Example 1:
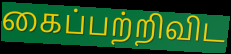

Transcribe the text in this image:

கைப்பற்றிவிட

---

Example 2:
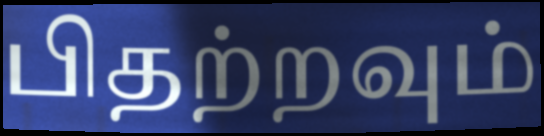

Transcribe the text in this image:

பிதற்றவும்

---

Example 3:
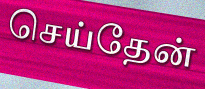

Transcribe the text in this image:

செய்தேன்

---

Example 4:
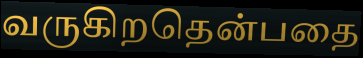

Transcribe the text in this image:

வருகிறதென்பதை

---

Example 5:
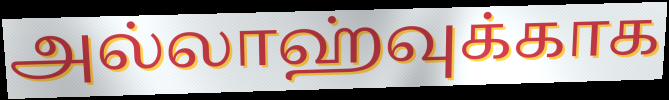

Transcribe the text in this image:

அல்லாஹ்வுக்காக